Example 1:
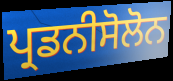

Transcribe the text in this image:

ਪ੍ਰਡਨੀਸੋਲੋਨ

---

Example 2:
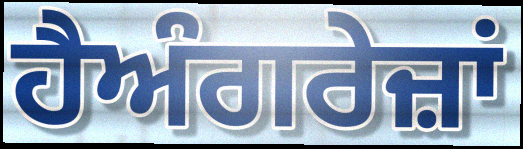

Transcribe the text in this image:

ਹੈਅੰਗਰੇਜ਼ਾਂ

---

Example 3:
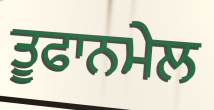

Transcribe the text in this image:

ਤੂਫਾਨਮੇਲ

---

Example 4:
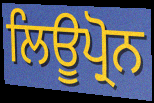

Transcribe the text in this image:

ਲਿਊਪ੍ਰੋਨ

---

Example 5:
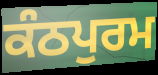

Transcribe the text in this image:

ਕੰਠਪੁਰਮ